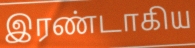
இரண்டாகிய